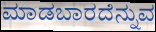
ಮಾಡಬಾರದೆನ್ನುವ